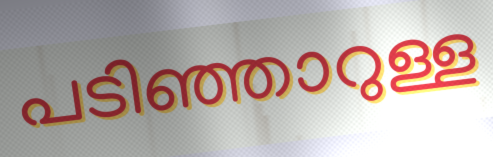
പടിഞ്ഞാറുള്ള